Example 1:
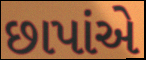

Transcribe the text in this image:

છાપાંએ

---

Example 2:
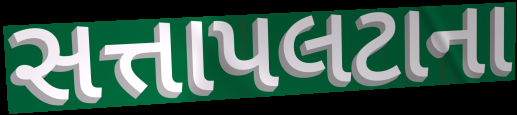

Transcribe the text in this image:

સત્તાપલટાના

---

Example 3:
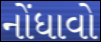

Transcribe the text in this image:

નોંધાવો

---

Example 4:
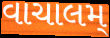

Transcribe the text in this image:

વાચાલમ્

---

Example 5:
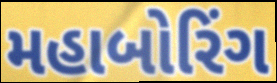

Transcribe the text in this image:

મહાબોરિંગ